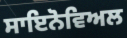
ਸਾਇਨੋਵਿਅਲ